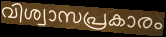
വിശ്വാസപ്രകാരം